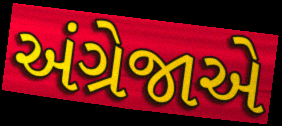
અંગ્રેજાએ